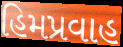
હિમપ્રવાહ